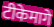
टीकेमागे